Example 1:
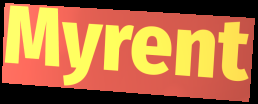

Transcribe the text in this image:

Myrent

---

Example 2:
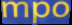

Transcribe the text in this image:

mpo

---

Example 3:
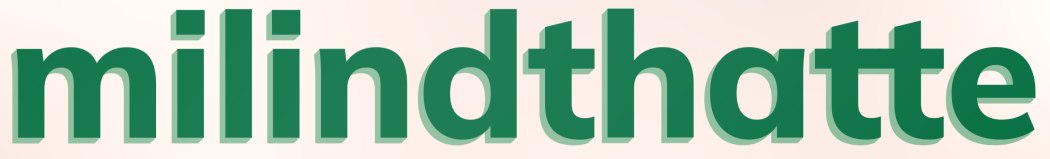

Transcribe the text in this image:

milindthatte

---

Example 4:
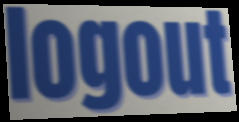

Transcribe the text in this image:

logout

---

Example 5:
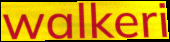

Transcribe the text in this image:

walkeri